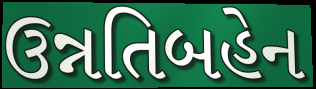
ઉન્નતિબહેન